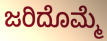
ಜರಿದೊಮ್ಮೆ